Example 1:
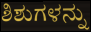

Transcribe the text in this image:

ಶಿಶುಗಳನ್ನು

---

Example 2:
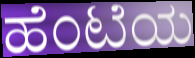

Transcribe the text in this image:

ಹೆಂಟೆಯ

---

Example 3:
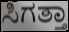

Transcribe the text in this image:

ಸಿಗತ್ತಾ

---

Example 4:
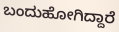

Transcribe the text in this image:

ಬಂದುಹೋಗಿದ್ದಾರೆ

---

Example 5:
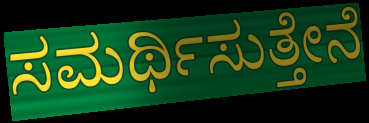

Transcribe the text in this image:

ಸಮರ್ಥಿಸುತ್ತೇನೆ